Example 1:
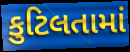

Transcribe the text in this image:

કુટિલતામાં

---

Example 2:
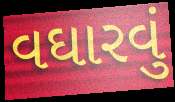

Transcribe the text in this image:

વઘારવું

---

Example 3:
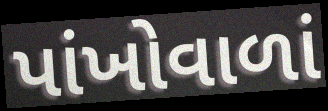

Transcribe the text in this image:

પાંખોવાળાં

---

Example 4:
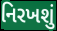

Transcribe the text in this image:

નિરખશું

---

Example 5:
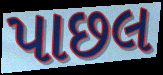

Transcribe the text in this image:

પાછલ